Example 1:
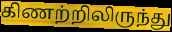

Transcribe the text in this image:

கிணற்றிலிருந்து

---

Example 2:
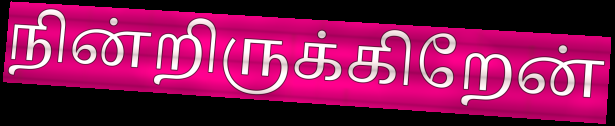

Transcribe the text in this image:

நின்றிருக்கிறேன்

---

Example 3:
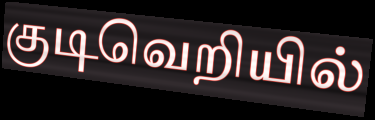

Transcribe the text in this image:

குடிவெறியில்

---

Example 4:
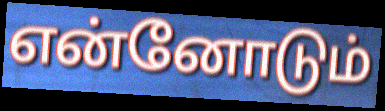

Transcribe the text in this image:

என்னோடும்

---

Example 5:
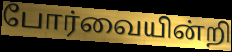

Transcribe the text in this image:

போர்வையின்றி